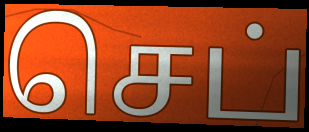
செப்